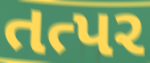
તત્પર